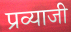
प्रव्याजी